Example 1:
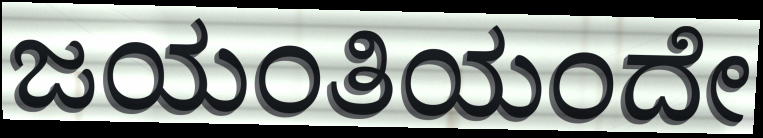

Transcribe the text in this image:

ಜಯಂತಿಯಂದೇ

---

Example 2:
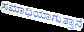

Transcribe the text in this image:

ಸಮಾಧಿಯಾಗುತ್ತಾನೆ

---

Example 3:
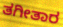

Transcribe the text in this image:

ತಗೀತಾರ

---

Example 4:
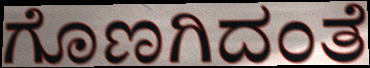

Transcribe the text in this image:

ಗೊಣಗಿದಂತೆ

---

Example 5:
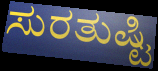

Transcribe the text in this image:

ಸುರತುಷ್ಟಿ